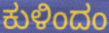
ಕುಳಿಂದಂ